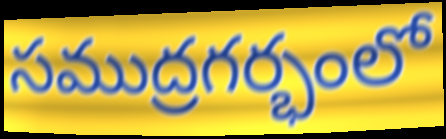
సముద్రగర్భంలో